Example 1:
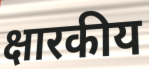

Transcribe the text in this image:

क्षारकीय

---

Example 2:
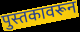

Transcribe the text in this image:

पुस्तकावरून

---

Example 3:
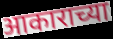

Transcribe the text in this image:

आकाराच्या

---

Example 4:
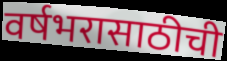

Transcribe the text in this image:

वर्षभरासाठीची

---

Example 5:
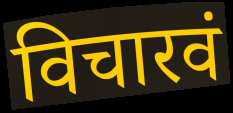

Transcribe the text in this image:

विचारवं